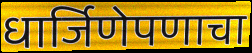
धार्जिणेपणाचा